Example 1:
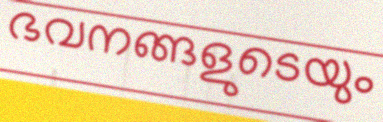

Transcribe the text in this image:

ഭവനങ്ങളുടെയും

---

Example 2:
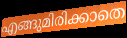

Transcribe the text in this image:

എങ്ങുമിരിക്കാതെ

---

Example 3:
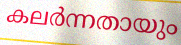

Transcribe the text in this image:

കലർന്നതായും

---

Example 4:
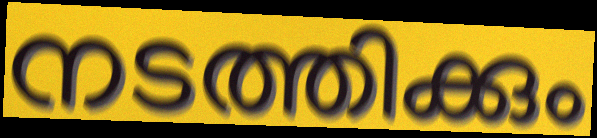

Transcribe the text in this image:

നടത്തിക്കും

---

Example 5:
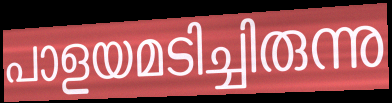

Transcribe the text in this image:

പാളയമടിച്ചിരുന്നു